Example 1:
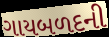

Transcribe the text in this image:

ગાયબળદની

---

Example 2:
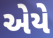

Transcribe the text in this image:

એયે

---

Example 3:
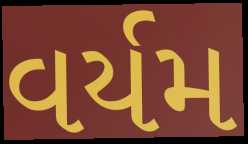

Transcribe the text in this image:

વર્યમ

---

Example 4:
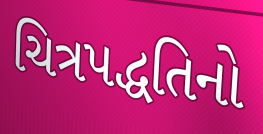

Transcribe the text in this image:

ચિત્રપદ્ધતિનો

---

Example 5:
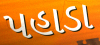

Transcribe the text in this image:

પહાડા